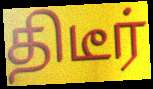
திடீர்